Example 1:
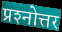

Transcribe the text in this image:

प्रश्नोत्तर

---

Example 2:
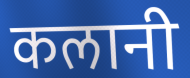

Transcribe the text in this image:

कलानी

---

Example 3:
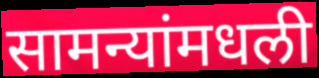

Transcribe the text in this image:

सामन्यांमधली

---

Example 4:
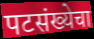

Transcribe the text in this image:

पटसंख्येचा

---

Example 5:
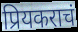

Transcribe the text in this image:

प्रियकराचं